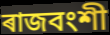
ৰাজবংশী